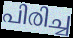
പിരിച്ച